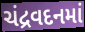
ચંદ્રવદનમાં